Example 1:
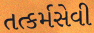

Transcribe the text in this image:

તત્કર્મસેવી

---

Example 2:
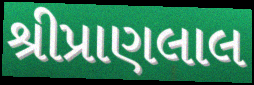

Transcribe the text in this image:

શ્રીપ્રાણલાલ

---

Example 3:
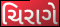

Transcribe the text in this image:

ચિરાગે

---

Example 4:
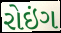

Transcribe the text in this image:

રોઇંગ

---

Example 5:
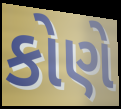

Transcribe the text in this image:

કોણે